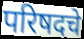
परिषदचे